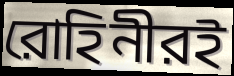
রোহিনীরই